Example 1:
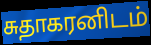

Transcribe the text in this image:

சுதாகரனிடம்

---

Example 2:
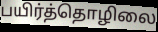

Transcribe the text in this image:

பயிர்த்தொழிலை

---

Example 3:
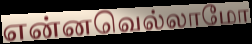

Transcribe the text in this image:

என்னவெல்லாமோ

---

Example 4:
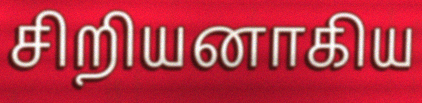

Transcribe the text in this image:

சிறியனாகிய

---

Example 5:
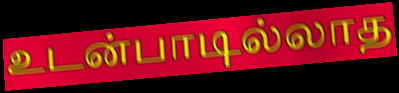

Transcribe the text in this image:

உடன்பாடில்லாத